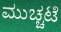
ಮುಚ್ಚಟೆ